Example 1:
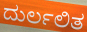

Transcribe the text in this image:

ದುರ್ಲಲಿತ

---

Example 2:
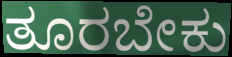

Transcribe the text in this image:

ತೂರಬೇಕು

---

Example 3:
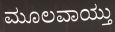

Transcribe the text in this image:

ಮೂಲವಾಯ್ತು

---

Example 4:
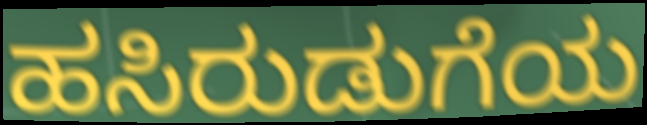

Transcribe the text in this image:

ಹಸಿರುಡುಗೆಯ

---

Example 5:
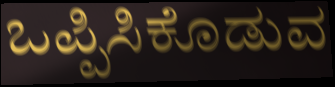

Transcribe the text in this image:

ಒಪ್ಪಿಸಿಕೊಡುವ